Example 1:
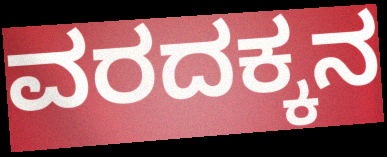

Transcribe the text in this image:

ವರದಕ್ಕನ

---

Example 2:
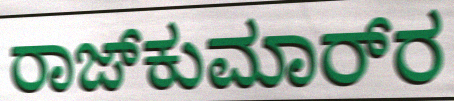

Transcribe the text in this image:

ರಾಜ್‌ಕುಮಾರ್‌ರ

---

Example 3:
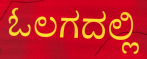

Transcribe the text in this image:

ಓಲಗದಲ್ಲಿ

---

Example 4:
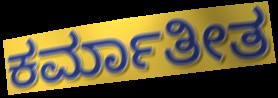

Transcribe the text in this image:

ಕರ್ಮಾತೀತ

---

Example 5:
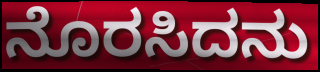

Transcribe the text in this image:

ನೊರಸಿದನು